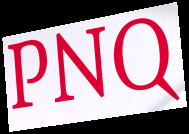
PNQ